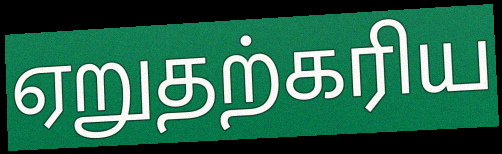
ஏறுதற்கரிய